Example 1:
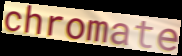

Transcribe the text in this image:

chromate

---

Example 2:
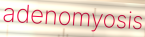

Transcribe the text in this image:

adenomyosis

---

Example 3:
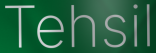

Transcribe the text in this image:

Tehsil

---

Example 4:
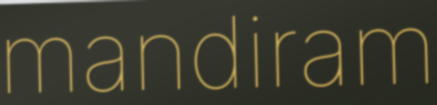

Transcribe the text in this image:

mandiram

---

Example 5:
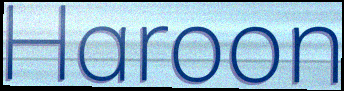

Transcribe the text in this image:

Haroon